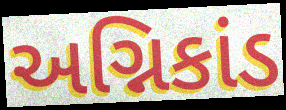
અગ્નિકાંડ